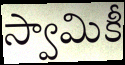
స్వామికీ